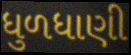
ધુળધાણી